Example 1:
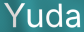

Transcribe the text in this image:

Yuda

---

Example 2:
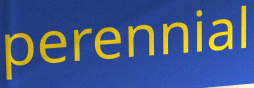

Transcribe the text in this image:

perennial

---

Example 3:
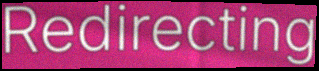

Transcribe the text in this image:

Redirecting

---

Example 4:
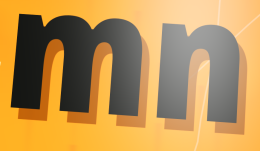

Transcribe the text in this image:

mn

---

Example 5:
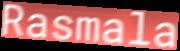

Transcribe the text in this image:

Rasmala